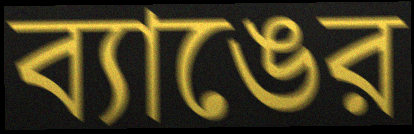
ব্যাঙের